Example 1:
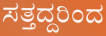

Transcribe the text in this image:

ಸತ್ತದ್ದರಿಂದ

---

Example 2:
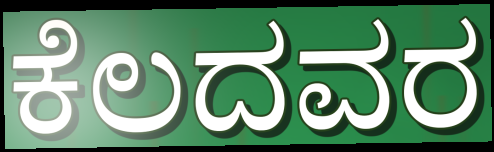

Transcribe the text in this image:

ಕೆಲದವರ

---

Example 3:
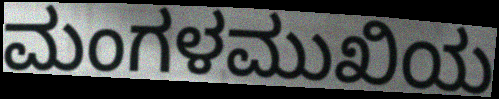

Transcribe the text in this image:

ಮಂಗಳಮುಖಿಯ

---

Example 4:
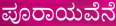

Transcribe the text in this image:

ಪೂರಾಯವೆನೆ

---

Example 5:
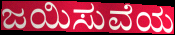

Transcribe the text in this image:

ಜಯಿಸುವೆಯ